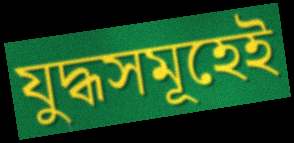
যুদ্ধসমূহেই